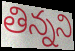
తిన్నని